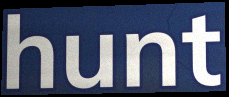
hunt